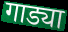
गाड्या